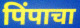
पिंपाचा